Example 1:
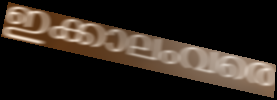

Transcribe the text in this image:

ഇക്കാലംവരെ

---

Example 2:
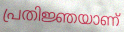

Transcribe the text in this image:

പ്രതിജ്ഞയാണ്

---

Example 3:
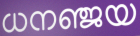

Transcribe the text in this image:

ധനഞ്ജയ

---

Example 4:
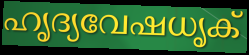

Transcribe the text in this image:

ഹൃദ്യവേഷധൃക്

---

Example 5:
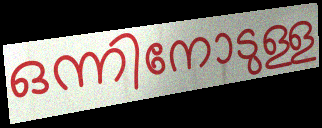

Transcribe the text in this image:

ഒന്നിനോടുള്ള